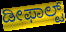
ಡೀಫಾಲ್ಟ್